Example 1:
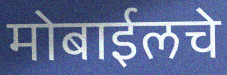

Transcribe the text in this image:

मोबाईलचे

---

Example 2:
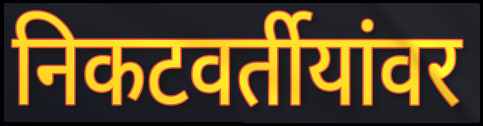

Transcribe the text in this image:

निकटवर्तीयांवर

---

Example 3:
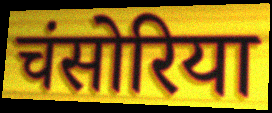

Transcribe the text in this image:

चंसोरिया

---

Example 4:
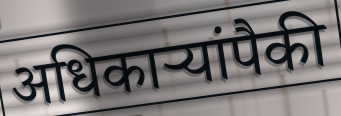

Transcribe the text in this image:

अधिकार्‍यांपैकी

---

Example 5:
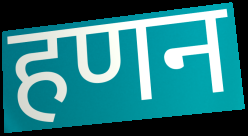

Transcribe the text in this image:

हणन